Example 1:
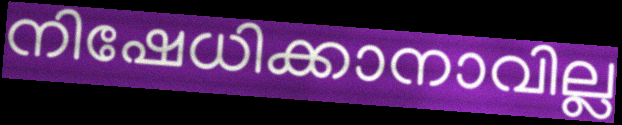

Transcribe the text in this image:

നിഷേധിക്കാനാവില്ല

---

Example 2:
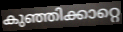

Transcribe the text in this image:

കുഞ്ഞിക്കാറ്റെ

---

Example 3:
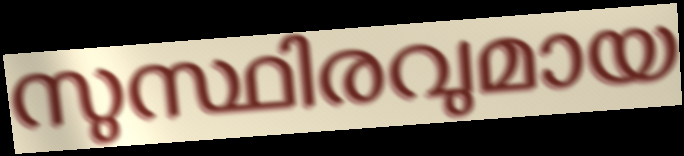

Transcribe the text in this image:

സുസ്ഥിരവുമായ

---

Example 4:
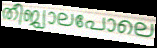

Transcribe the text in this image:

തീജ്വാലപോലെ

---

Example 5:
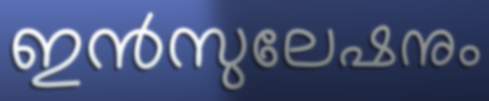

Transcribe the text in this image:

ഇൻസുലേഷനും